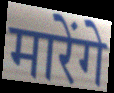
मारेंगे